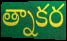
త్నాకర